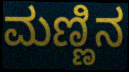
ಮಣ್ಣಿನ